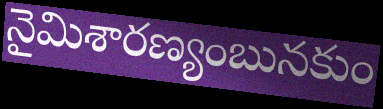
నైమిశారణ్యంబునకుం